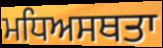
ਮਧਿਅਸਥਤਾ